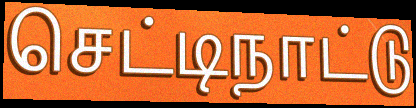
செட்டிநாட்டு